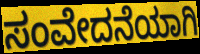
ಸಂವೇದನೆಯಾಗಿ